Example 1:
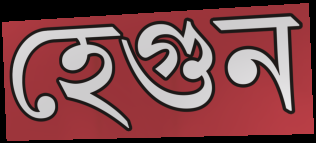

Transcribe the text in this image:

হেগুন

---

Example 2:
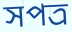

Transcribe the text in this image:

সপত্র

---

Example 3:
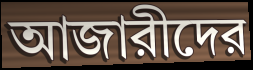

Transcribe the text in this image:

আজারীদের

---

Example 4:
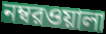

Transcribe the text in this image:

নম্বরওয়ালা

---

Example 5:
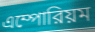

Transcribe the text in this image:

এম্পোরিয়ম